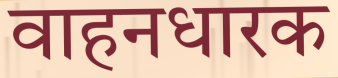
वाहनधारक